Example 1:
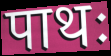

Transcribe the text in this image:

पाथः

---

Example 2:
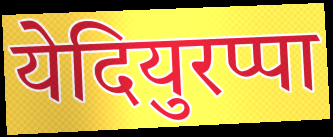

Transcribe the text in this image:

येदियुरप्पा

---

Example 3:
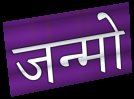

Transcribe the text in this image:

जन्मो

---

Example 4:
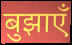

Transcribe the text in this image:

बुझाएँ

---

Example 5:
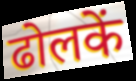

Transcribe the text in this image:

ढोलकें